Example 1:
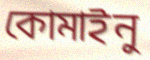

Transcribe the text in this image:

কোমাইনু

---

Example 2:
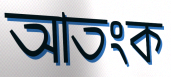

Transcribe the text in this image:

আতংক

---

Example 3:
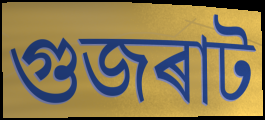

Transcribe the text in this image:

গুজৰাট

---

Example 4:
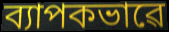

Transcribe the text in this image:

ব্যাপকভাৱে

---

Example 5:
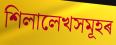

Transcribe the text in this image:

শিলালেখসমূহৰ